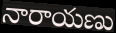
నారాయణు